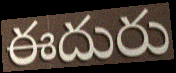
ఈదురు